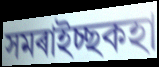
সমৰাইচ্ছকহা